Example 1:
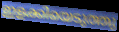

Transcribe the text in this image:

ഇളക്കിയെടുത്തു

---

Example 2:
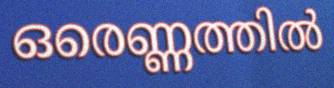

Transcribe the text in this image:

ഒരെണ്ണത്തിൽ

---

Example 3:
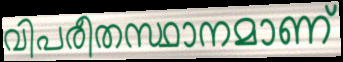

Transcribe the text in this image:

വിപരീതസ്ഥാനമാണ്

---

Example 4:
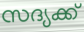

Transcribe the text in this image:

സദ്യക്ക്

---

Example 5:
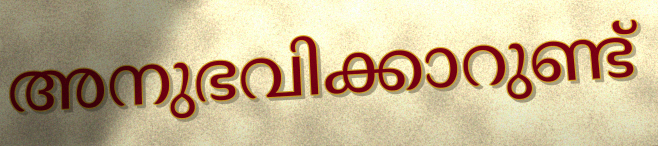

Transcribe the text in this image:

അനുഭവിക്കാറുണ്ട്